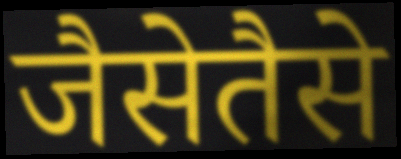
जैसेतैसे